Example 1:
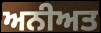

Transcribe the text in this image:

ਅਨੀਅਤ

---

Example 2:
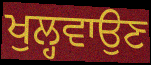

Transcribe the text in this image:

ਖੁਲ੍ਹਵਾਉਣ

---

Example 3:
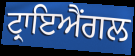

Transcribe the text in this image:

ਟ੍ਰਾਇਐਂਗਲ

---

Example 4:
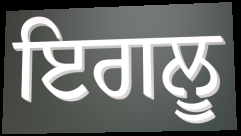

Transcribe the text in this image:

ਇਗਲੂ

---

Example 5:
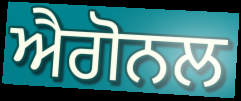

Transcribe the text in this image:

ਐਗੋਨਲ